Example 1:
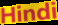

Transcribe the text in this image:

Hindi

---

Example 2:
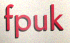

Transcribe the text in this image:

fpuk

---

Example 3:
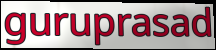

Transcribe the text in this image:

guruprasad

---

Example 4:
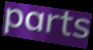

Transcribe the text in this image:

parts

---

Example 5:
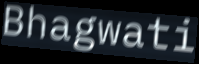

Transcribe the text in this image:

Bhagwati